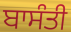
ਬਾਸੰਤੀ